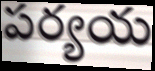
పర్యయ